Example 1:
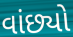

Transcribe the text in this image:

વાંછ્યો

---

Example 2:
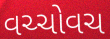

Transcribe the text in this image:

વચ્ચોવચ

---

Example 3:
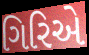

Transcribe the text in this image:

ગિરિએ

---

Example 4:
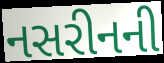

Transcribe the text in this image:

નસરીનની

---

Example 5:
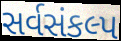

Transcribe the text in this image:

સર્વસંકલ્પ